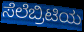
ಸೆಲೆಬ್ರಿಟಿಯ